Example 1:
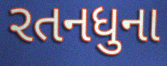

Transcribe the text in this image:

રતનધુના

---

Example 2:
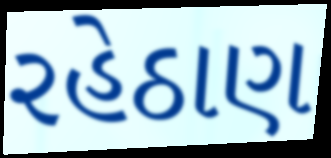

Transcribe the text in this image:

રહેઠાણ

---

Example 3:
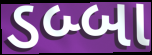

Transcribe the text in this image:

ડબ્બા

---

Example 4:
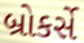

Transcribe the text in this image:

બ્રોકર્સે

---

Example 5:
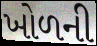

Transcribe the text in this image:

ખોળની